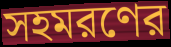
সহমরণের